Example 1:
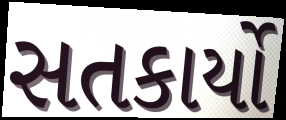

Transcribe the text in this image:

સતકાર્યો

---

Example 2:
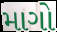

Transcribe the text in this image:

માગો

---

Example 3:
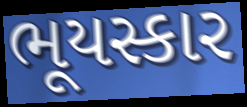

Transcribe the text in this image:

ભૂયસ્કાર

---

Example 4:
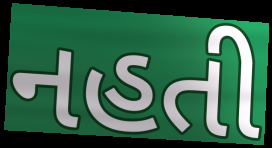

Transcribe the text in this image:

નહતી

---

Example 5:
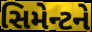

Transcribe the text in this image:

સિમેન્ટને